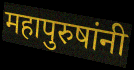
महापुरुषांनी